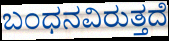
ಬಂಧನವಿರುತ್ತದೆ